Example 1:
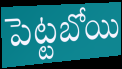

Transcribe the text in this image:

పెట్టబోయి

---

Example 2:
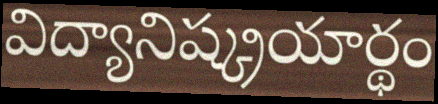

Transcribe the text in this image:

విద్యానిష్క్రయార్థం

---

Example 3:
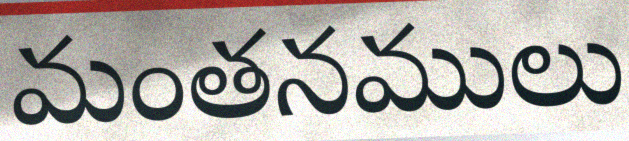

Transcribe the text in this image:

మంతనములు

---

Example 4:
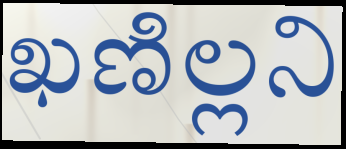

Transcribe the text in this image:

ఖణిల్లని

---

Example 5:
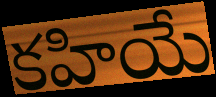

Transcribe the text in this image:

కహియే